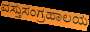
ವಸ್ತುಸಂಗ್ರಹಾಲಯ